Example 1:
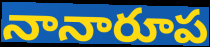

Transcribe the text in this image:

నానారూప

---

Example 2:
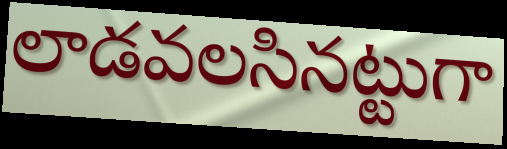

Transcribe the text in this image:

లాడవలసినట్టుగా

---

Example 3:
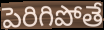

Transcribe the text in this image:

పెరిగిపోతే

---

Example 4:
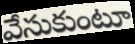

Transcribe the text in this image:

వేసుకుంటూ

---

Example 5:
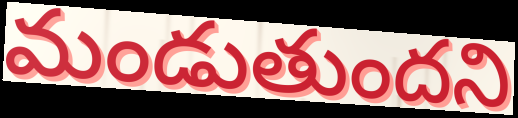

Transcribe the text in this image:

మండుతుందని